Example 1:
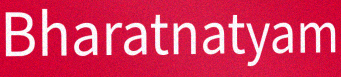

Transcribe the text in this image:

Bharatnatyam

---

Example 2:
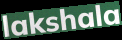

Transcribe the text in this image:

lakshala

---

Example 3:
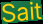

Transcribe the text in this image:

Sait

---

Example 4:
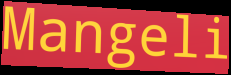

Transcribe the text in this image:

Mangeli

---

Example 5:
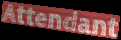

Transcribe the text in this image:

Attendant